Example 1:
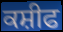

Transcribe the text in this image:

ਕਸ਼ੀਫ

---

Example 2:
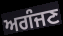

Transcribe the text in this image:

ਅਗੰਜਣ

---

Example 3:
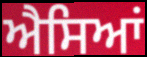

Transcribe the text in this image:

ਐਸਿਆਂ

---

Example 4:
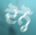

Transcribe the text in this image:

ਦੋਨ੍ਹੋ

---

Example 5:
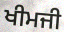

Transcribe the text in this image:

ਖੀਮਜੀ